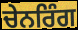
ਚੇਨਰਿੰਗ